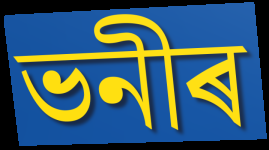
ভনীৰ